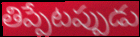
తిప్పేటప్పుడు